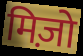
मिज़ो